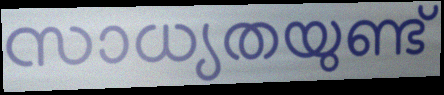
സാധ്യതയുണ്ട്